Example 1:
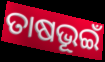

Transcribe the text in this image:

ତାଷଭୂଇଁ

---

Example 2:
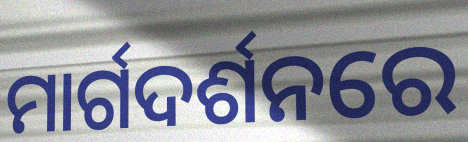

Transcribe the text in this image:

ମାର୍ଗଦର୍ଶନରେ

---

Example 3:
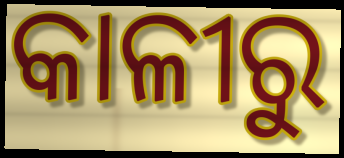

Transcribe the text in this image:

କାଳୀରୁ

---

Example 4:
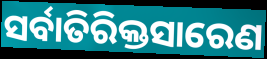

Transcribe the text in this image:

ସର୍ବାତିରିକ୍ତସାରେଣ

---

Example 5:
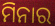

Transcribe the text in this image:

ମିନାର